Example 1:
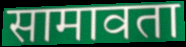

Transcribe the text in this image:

सामावता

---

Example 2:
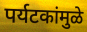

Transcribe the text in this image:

पर्यटकांमुळे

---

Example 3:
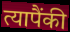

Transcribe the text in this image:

त्यापैंकी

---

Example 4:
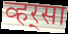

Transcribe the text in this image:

व्हर्सा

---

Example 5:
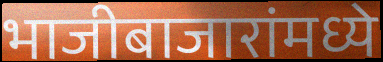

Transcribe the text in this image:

भाजीबाजारांमध्ये